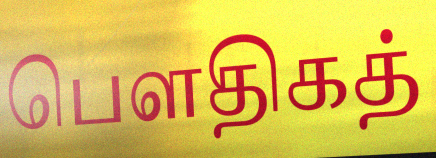
பௌதிகத்